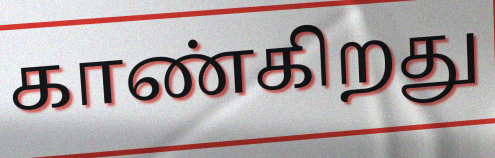
காண்கிறது